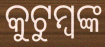
କୁଟୁମ୍ବଙ୍କ